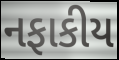
નફાકીય